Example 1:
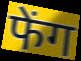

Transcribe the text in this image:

फेंग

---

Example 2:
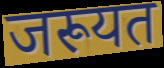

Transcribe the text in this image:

जरूयत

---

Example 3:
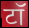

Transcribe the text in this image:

टॉ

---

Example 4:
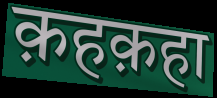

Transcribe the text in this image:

क़हक़हा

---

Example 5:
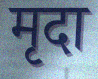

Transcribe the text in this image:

मृदा